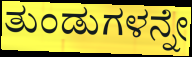
ತುಂಡುಗಳನ್ನೇ